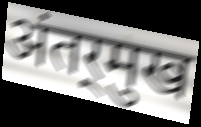
अंतर्मुख